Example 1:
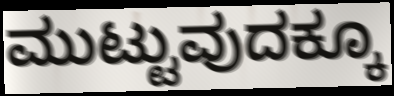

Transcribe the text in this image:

ಮುಟ್ಟುವುದಕ್ಕೂ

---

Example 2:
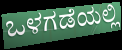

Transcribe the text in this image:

ಒಳಗಡೆಯಲ್ಲಿ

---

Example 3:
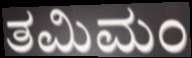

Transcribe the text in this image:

ತಮಿಮಂ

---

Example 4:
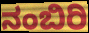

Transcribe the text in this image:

ನಂಬಿರಿ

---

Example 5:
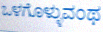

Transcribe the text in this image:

ಒಳಗೊಳ್ಳುವಂಥ